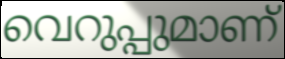
വെറുപ്പുമാണ്